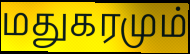
மதுகரமும்